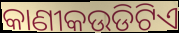
କାଣୀକଉଡିଟିଏ